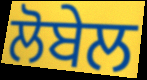
ਲੋਬੇਲ